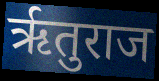
ऋृतुराज